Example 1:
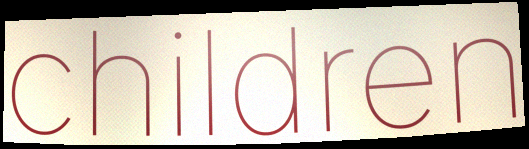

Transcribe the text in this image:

children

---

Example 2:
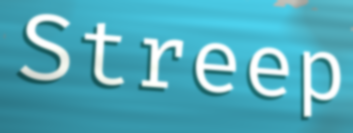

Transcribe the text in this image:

Streep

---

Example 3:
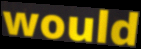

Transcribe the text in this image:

would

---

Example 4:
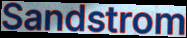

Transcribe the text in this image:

Sandstrom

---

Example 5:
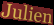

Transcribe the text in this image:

Julien